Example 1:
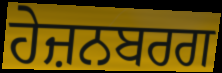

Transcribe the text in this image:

ਹੇਜ਼ਨਬਰਗ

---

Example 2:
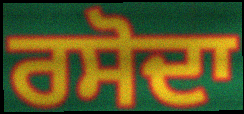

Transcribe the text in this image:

ਰਸੋਦਾ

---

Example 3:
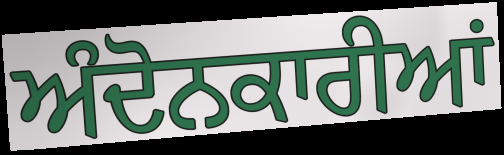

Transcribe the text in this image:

ਅੰਦੋਨਕਾਰੀਆਂ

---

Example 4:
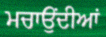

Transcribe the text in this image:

ਮਚਾਉਂਦੀਆਂ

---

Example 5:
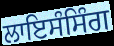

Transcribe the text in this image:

ਲਾਇਸੰਸਿੰਗ